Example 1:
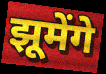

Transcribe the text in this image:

झूमेंगे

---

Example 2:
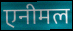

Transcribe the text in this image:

एनीमल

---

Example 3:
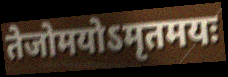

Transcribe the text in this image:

तेजोमयोऽमृतमयः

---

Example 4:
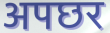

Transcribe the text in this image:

अपछर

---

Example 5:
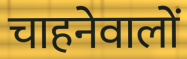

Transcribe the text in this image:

चाहनेवालों